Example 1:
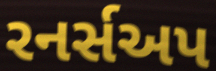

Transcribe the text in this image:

રનર્સઅપ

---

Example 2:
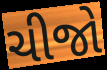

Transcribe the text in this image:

ચીજો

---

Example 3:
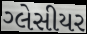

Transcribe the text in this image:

ગ્લેસીયર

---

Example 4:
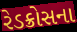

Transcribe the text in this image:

રેડક્રોસના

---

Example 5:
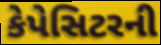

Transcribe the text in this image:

કેપેસિટરની